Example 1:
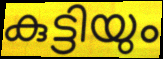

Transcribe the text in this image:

കുട്ടിയും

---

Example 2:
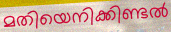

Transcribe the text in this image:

മതിയെനിക്കിണ്ടൽ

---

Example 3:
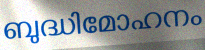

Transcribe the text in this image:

ബുദ്ധിമോഹനം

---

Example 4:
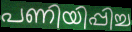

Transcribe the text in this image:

പണിയിപ്പിച്ച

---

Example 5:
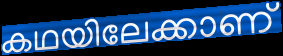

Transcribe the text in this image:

കഥയിലേക്കാണ്